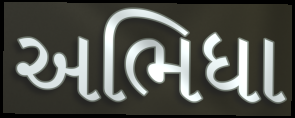
અભિધા